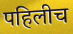
पहिलीच